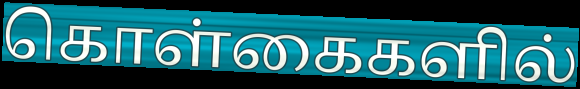
கொள்கைகளில்